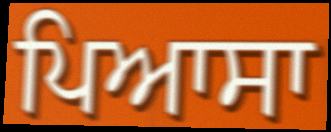
ਪਿਆਸਾ